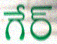
గేర్